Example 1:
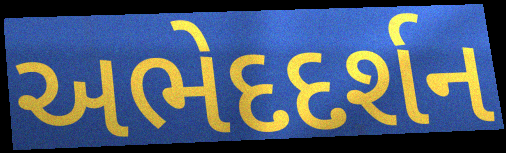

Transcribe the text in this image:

અભેદદર્શન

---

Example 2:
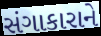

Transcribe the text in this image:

સંગાકારાને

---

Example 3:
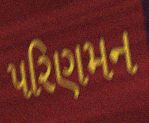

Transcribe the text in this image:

પરિણમન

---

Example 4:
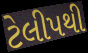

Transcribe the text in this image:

ટેલીપથી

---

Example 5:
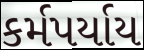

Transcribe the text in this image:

કર્મપર્યાય